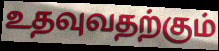
உதவுவதற்கும்